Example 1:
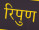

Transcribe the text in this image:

रिपुण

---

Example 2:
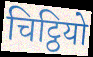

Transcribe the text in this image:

चिट्ठियो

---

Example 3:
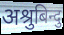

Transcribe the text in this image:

अश्रुबिन्दु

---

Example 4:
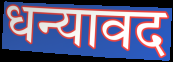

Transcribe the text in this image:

धन्यावद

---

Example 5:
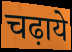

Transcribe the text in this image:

चढ़ाये